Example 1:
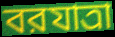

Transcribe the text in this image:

বরযাত্রা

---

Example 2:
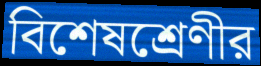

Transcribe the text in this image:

বিশেষশ্রেণীর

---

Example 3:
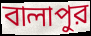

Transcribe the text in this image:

বালাপুর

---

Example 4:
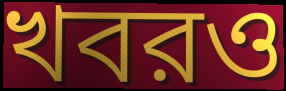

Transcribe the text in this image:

খবরও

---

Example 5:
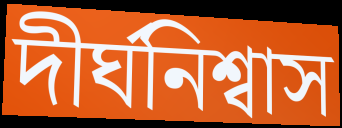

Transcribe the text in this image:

দীর্ঘনিশ্বাস